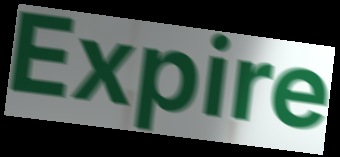
Expire